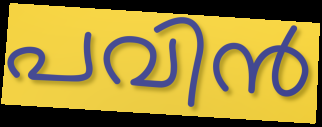
പവിൻ